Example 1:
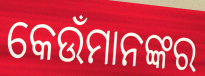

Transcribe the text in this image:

କେଉଁମାନଙ୍କର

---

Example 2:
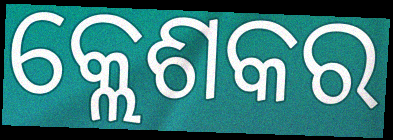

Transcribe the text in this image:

କ୍ଲେଶକର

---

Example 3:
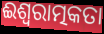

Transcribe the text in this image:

ଈଶ୍ଵରାତ୍ମକତା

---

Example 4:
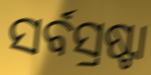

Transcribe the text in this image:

ସର୍ବସ୍ରଷ୍ଟା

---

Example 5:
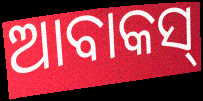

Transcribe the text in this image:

ଆବାକସ୍